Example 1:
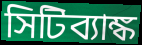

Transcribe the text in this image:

সিটিব্যাঙ্ক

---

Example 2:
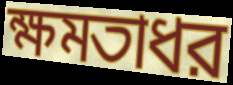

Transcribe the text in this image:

ক্ষমতাধর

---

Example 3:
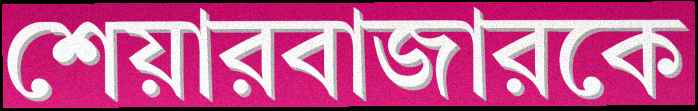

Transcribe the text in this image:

শেয়ারবাজারকে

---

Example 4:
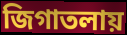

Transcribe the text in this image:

জিগাতলায়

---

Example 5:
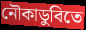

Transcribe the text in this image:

নৌকাডুবিতে